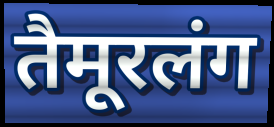
तैमूरलंग